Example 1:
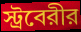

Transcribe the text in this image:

স্ট্রবেরীর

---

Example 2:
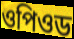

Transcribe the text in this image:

ওপিওড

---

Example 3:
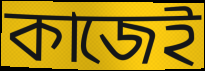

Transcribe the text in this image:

কাজেই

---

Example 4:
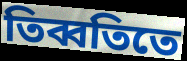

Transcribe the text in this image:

তিব্বতিতে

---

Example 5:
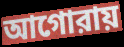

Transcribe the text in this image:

আগোরায়